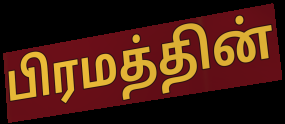
பிரமத்தின்